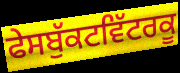
ਫੇਸਬੁੱਕਟਵਿੱਟਰਕੂ